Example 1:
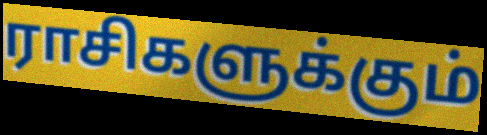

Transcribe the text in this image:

ராசிகளுக்கும்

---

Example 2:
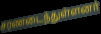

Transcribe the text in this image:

சரணடைந்துள்ளனர்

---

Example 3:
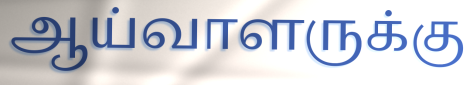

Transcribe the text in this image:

ஆய்வாளருக்கு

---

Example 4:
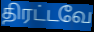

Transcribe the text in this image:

திரட்டவே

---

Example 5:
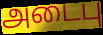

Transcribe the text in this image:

அடைபு